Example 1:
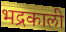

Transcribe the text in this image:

भद्रकाली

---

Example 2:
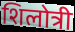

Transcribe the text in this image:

शिलोत्री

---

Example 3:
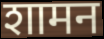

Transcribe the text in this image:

शामन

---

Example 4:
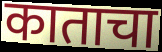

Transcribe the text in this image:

काताचा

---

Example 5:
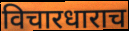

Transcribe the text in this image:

विचारधाराच